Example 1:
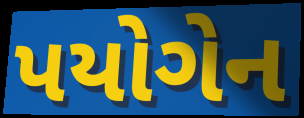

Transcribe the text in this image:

પયોગેન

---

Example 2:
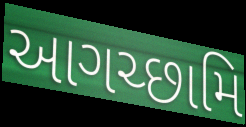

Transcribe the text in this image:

આગચ્છામિ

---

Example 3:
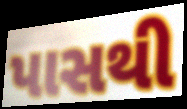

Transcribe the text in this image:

પાસથી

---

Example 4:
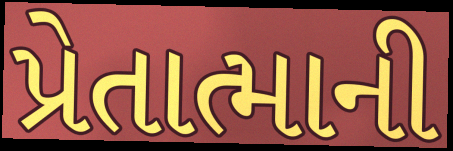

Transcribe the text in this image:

પ્રેતાત્માની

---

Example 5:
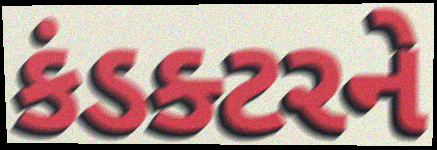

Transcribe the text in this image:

કંડક્ટરને